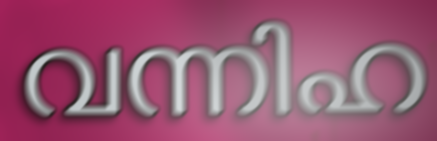
വന്നിഹ